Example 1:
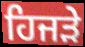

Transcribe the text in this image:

ਹਿਜੜੇ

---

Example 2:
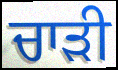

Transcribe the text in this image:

ਚਾਡ਼ੀ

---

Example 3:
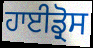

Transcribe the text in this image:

ਹਾਈਡ੍ਰੋਸ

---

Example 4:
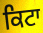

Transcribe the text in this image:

ਕਿਟਾ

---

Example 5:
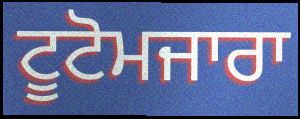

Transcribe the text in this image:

ਟੂਟੋਮਜਾਰਾ